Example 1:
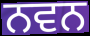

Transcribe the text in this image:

ਨਵਨ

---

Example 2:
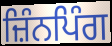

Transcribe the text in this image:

ਜ਼ਿੰਨਪਿੰਗ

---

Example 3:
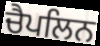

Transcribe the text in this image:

ਚੈਪਲਿਨ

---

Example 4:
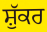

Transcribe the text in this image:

ਸ਼ੁੱਕਰ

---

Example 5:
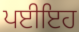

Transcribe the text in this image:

ਪਈਇਹ